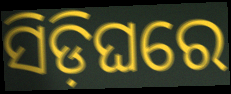
ସିଡ଼ିଘରେ